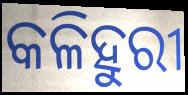
କଳିହୁରୀ